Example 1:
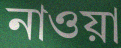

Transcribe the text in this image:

নাওয়া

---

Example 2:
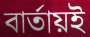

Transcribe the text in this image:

বার্তায়ই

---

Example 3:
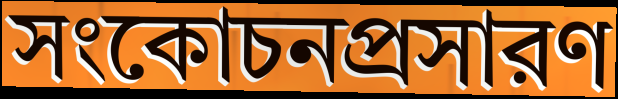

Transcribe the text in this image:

সংকোচনপ্রসারণ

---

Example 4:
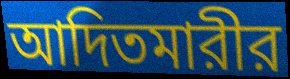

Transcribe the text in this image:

আদিতমারীর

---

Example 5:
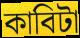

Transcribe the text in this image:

কাবিটা